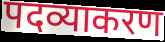
पदव्याकरण